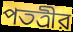
পতত্রীর